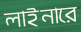
লাইনারে